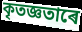
কৃতজ্ঞতাৰে